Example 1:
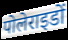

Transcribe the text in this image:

पोलेराइडों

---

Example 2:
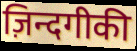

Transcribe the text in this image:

ज़िन्दगीकी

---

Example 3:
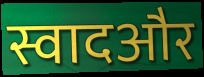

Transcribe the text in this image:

स्वादऔर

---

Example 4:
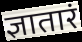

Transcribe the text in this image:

ज्ञातारं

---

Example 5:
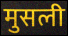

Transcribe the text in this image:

मुसली